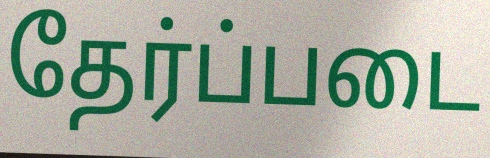
தேர்ப்படை